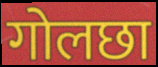
गोलछा